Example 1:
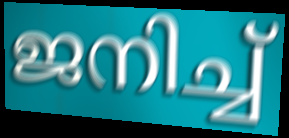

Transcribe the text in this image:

ജനിച്ച്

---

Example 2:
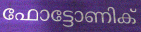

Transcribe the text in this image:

ഫോട്ടോണിക്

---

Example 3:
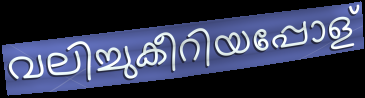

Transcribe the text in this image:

വലിച്ചുകീറിയപ്പോള്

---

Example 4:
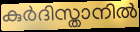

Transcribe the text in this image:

കുർദിസ്താനിൽ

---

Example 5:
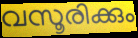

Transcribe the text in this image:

വസൂരിക്കും